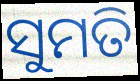
ସୁମତି